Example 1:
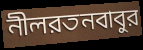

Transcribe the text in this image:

নীলরতনবাবুর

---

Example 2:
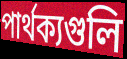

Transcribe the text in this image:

পার্থক্যগুলি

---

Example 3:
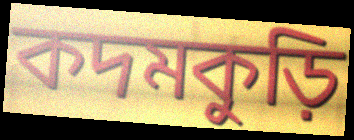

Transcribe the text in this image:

কদমকুড়ি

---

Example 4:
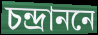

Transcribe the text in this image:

চন্দ্রাননে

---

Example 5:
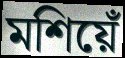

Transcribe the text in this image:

মশিয়েঁ